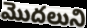
మొదలుని